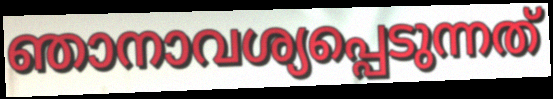
ഞാനാവശ്യപ്പെടുന്നത്